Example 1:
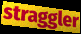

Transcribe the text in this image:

straggler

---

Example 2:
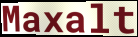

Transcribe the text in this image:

Maxalt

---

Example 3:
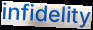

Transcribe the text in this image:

infidelity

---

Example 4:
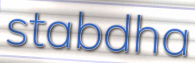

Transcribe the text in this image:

stabdha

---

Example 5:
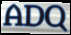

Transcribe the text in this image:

ADQ